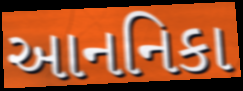
આનનિકા